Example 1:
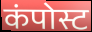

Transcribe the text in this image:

कंपोस्ट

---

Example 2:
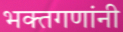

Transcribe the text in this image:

भक्तगणांनी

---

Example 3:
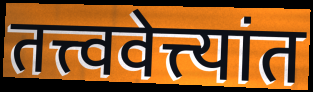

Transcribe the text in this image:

तत्त्ववेत्त्यांत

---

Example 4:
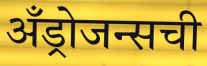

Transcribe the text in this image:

अँड्रोजन्सची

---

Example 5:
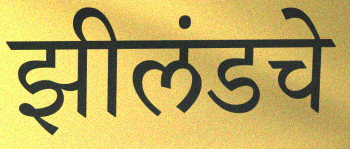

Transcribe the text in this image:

झीलंडचे